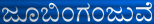
ಜೂಬಿಂಗಂಜುವೆ